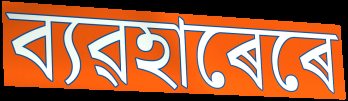
ব্যৱহাৰেৰে